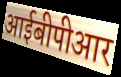
आईबीपीआर